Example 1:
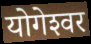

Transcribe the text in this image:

योगेश्‍वर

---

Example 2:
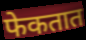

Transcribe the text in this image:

फेकतात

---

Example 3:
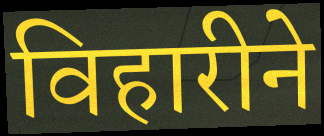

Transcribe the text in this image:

विहारीने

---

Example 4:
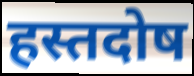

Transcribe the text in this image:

हस्तदोष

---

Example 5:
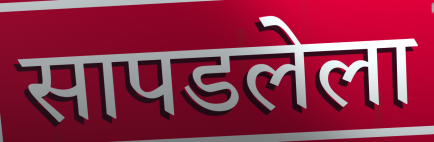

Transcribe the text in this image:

सापडलेला